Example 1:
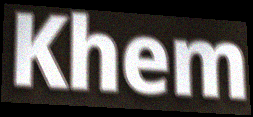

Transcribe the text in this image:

Khem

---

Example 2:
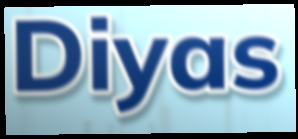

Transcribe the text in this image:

Diyas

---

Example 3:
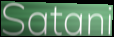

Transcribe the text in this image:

Satani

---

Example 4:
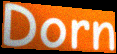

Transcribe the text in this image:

Dorn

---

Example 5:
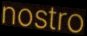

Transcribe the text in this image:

nostro